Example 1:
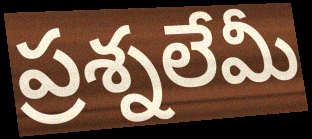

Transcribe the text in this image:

ప్రశ్నలేమీ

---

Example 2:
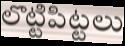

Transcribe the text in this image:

లొట్టిపిట్టలు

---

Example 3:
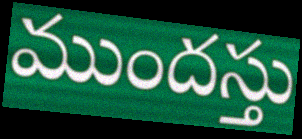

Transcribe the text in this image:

ముందస్తు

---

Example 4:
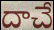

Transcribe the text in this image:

దాచే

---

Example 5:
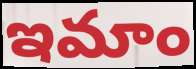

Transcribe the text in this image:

ఇమాం